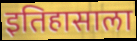
इतिहासाला